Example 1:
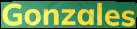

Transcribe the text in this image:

Gonzales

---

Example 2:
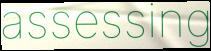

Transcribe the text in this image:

assessing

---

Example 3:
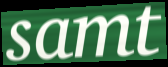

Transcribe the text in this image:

samt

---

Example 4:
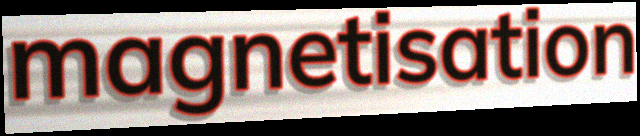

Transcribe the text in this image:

magnetisation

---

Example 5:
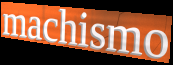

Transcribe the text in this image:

machismo